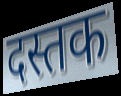
दस्तक